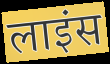
लाइंस